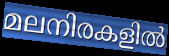
മലനിരകളിൽ